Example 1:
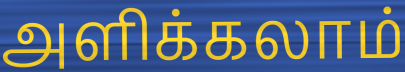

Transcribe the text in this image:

அளிக்கலாம்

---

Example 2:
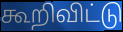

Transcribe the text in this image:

கூறிவிட்டு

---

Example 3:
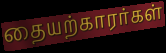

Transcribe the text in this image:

தையற்காரர்கள்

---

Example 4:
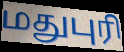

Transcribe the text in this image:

மதுபுரி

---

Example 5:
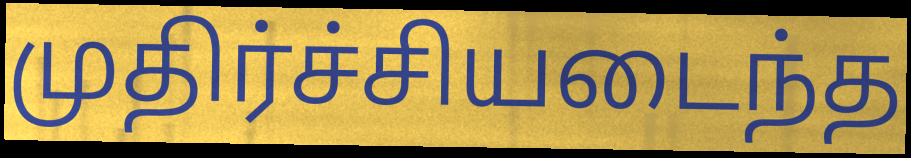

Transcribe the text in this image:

முதிர்ச்சியடைந்த